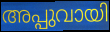
അപ്പുവായി